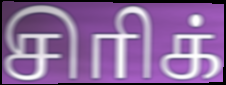
சிரிக்